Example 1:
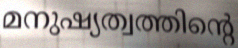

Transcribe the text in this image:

മനുഷ്യത്വത്തിന്റെ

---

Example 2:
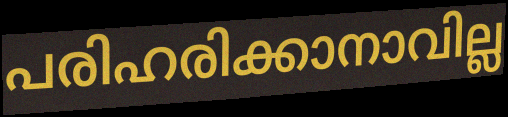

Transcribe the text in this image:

പരിഹരിക്കാനാവില്ല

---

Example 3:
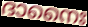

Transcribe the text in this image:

ദാനൈഃ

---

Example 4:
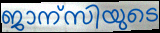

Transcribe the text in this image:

ജാന്സിയുടെ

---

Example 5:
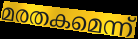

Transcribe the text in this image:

മരതകമെന്ന്